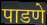
पाडणे